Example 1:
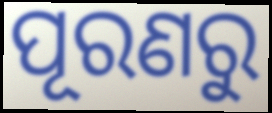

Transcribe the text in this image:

ପୂରଣରୁ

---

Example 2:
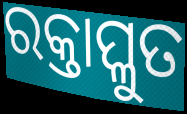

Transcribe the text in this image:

ରକ୍ତାପ୍ଳୁତ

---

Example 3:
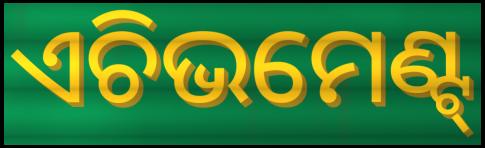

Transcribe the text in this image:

ଏଚିଭମେଣ୍ଟ୍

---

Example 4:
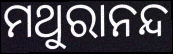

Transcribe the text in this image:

ମଥୁରାନନ୍ଦ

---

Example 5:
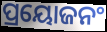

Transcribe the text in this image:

ପ୍ରୟୋଜନଂ